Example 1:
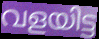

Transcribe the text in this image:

വളയിട്ട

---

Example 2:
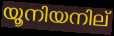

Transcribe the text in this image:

യൂനിയനില്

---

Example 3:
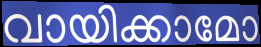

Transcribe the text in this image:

വായിക്കാമോ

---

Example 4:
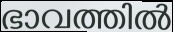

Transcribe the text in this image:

ഭാവത്തിൽ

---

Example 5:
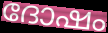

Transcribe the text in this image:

ദോഷം